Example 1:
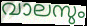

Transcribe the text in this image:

വാലസും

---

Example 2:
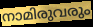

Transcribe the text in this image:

നാമിരുവരും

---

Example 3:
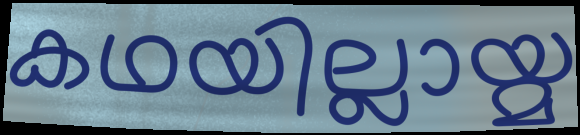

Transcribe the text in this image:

കഥയില്ലായ്മ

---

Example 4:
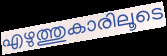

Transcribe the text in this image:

എഴുത്തുകാരിലൂടെ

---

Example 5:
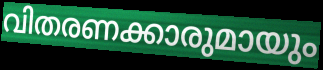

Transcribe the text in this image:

വിതരണക്കാരുമായും